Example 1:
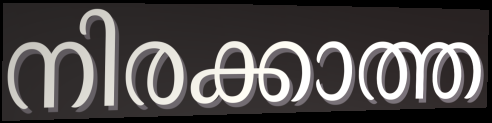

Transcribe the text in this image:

നിരക്കാത്ത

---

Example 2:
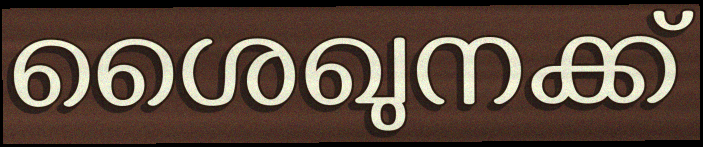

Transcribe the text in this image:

ശൈഖുനക്ക്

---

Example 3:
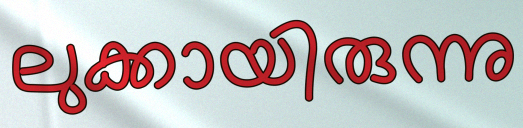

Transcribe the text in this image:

ലുക്കായിരുന്നു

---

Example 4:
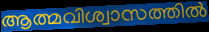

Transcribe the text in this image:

ആത്മവിശ്വാസത്തിൽ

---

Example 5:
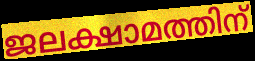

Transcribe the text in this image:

ജലക്ഷാമത്തിന്